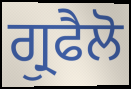
ਗ੍ਰੁਫੈਲੋ